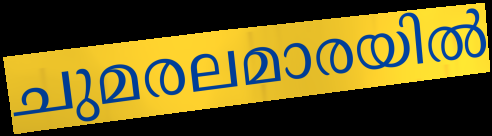
ചുമരലമാരയിൽ